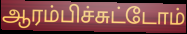
ஆரம்பிச்சுட்டோம்